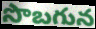
సొబగున